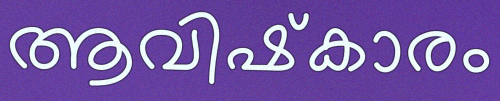
ആവിഷ്‌കാരം